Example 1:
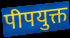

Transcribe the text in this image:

पीपयुक्त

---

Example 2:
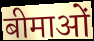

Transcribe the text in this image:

बीमाओं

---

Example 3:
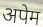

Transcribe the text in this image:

अपेम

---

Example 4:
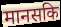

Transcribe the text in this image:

मानसकि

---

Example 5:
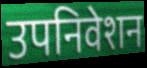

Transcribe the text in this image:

उपनिवेशन